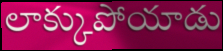
లాక్కుపోయాడు